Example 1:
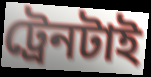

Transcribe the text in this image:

ট্রেনটাই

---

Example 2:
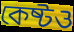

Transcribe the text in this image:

কেষ্টও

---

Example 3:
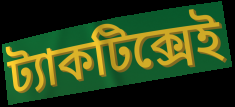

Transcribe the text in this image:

ট্যাকটিক্সেই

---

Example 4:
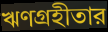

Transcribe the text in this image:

ঋণগ্রহীতার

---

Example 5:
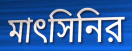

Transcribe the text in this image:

মাৎসিনির